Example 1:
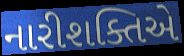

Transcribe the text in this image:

નારીશક્તિએ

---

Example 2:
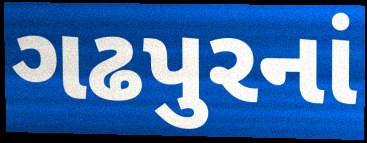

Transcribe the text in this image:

ગઢપુરનાં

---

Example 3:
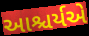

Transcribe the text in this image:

આશ્ચર્યએ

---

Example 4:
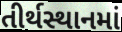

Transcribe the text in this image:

તીર્થસ્થાનમાં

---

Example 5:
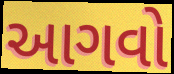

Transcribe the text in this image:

આગવો